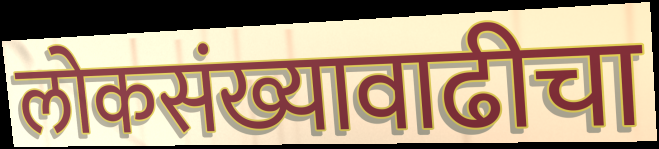
लोकसंख्यावाढीचा